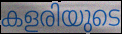
കളരിയുടെ